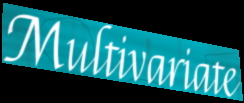
Multivariate